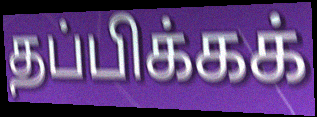
தப்பிக்கக்